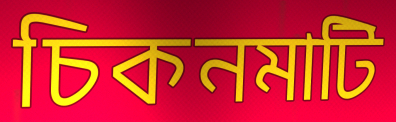
চিকনমাটি